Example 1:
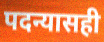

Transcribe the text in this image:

पदन्यासही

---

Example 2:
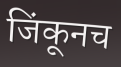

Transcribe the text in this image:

जिंकूनच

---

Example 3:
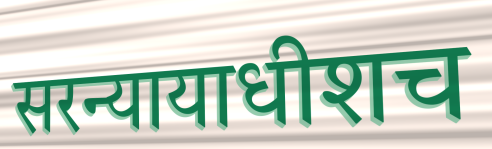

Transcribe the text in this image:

सरन्यायाधीशच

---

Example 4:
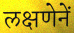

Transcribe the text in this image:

लक्षणेनें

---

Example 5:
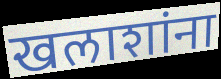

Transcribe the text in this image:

खलाशांना